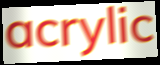
acrylic